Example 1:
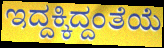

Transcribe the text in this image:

ಇದ್ದಕ್ಕಿದ್ದಂತೆಯೆ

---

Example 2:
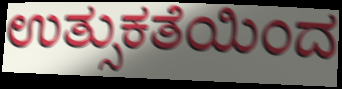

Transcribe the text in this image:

ಉತ್ಸುಕತೆಯಿಂದ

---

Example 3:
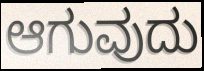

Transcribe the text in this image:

ಆಗುವುದು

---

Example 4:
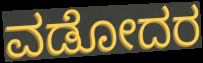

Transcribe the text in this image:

ವಡೋದರ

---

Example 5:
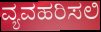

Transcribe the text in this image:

ವ್ಯವಹರಿಸಲಿ